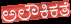
ಅಲೌಕಿಕತೆ